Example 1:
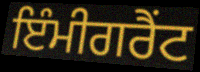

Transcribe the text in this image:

ਇੰਮੀਗਰੈਂਟ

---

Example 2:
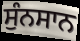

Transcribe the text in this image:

ਸੁੰਨਸਾਨ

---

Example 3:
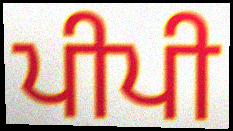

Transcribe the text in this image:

ਪੀਪੀ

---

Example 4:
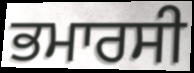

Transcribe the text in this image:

ਭਮਾਰਸੀ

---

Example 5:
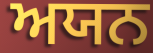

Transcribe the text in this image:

ਅਯਨ